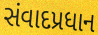
સંવાદપ્રધાન